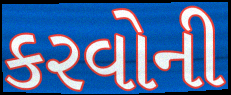
કરવોની